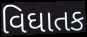
વિઘાતક